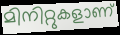
മിനിറ്റുകളാണ്